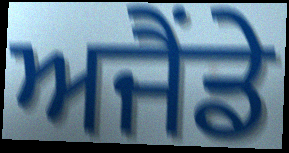
ਅਜੈਂਡੇ